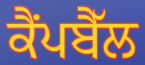
ਕੈਂਪਬੈੱਲ